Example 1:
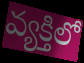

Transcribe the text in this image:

వ్యక్తిలో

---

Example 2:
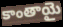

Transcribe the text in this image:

కాంతాయై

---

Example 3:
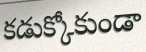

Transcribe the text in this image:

కడుక్కోకుండా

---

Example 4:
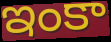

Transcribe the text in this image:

ఇంకా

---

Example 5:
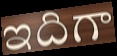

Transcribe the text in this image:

ఇదిగా